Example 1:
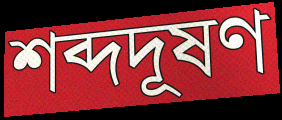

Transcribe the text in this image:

শব্দদূষণ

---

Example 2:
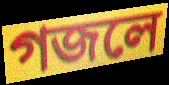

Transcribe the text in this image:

গজলে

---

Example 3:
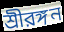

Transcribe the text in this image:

শ্রীরঙ্গন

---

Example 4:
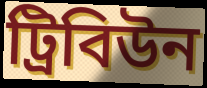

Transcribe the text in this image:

ট্রিবিউন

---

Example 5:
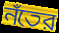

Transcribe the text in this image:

নঁতের